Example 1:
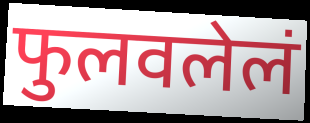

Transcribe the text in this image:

फुलवलेलं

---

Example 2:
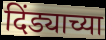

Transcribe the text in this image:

दिंड्याच्या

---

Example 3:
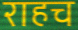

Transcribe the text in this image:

राहच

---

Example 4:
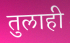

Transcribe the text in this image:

तुलाही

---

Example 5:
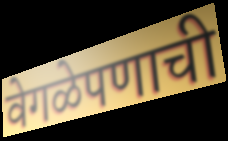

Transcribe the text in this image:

वेगळेपणाची